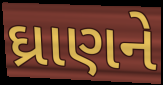
ઘ્રાણને